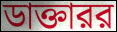
ডাক্তারর